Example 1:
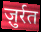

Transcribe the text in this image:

ज़ुर्रत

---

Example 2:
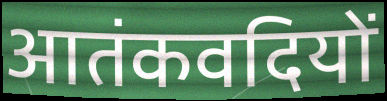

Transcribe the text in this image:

आतंकवदियों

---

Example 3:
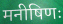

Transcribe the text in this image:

मनीषिणः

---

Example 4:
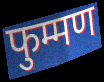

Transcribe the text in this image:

फुम्मण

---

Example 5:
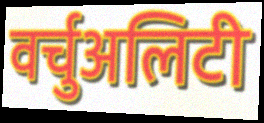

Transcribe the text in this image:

वर्चुअलिटी